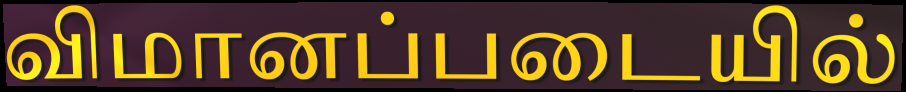
விமானப்படையில்